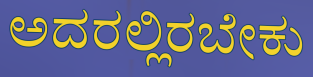
ಅದರಲ್ಲಿರಬೇಕು